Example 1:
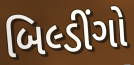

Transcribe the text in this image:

બિલ્ડીંગો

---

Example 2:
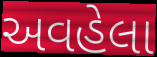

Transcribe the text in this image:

અવહેલા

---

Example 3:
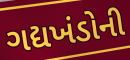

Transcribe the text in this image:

ગદ્યખંડોની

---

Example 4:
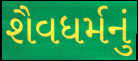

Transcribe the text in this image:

શૈવધર્મનું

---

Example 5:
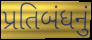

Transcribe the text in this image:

પ્રતિબંધનું